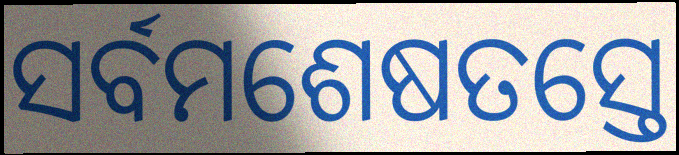
ସର୍ବମଶେଷତସ୍ତେ